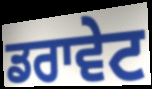
ਡਰਾਵੇਟ